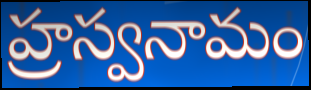
హ్రస్వనామం